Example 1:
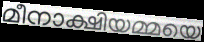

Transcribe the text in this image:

മീനാക്ഷിയമ്മയെ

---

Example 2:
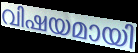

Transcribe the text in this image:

വിഷയമായി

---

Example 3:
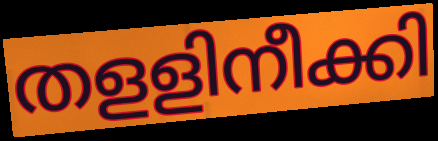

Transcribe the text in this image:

തളളിനീക്കി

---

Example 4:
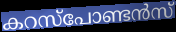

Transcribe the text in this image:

കറസ്പോണ്ടൻസ്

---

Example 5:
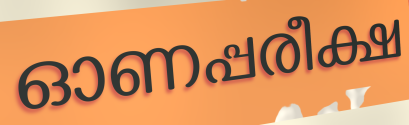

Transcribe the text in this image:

ഓണപ്പരീക്ഷ